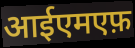
आईएमएफ़